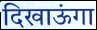
दिखाऊंगा